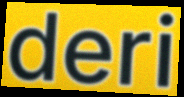
deri